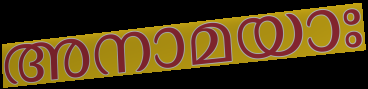
അനാമയാഃ